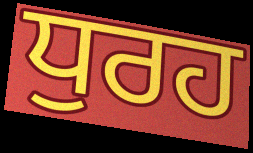
ਧੁਰਹ